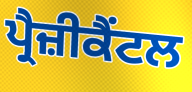
ਪ੍ਰੈਜ਼ੀਕੈਂਟਲ